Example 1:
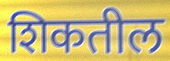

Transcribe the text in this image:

शिकतील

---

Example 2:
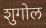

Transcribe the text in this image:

शुगोल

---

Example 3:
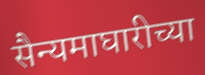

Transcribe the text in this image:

सैन्यमाघारीच्या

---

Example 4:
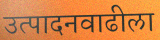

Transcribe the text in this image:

उत्पादनवाढीला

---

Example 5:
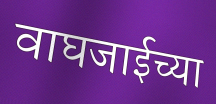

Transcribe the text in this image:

वाघजाईच्या